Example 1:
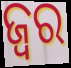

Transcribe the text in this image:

ଜ୍ବର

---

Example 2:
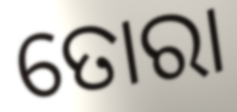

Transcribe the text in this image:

ତୋରା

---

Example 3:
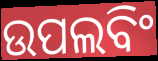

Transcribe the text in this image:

ଉପଲବିଂ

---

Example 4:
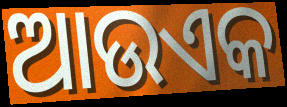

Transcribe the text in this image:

ଆଉଏକ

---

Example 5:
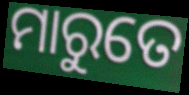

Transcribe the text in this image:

ମାରୁତେ